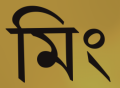
মিং